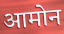
आमोन